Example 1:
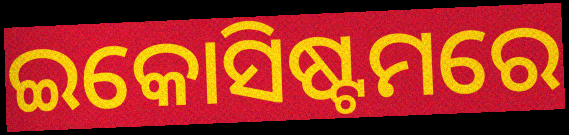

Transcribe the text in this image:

ଇକୋସିଷ୍ଟମରେ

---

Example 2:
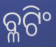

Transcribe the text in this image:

ବ୍ଳଟିଂ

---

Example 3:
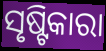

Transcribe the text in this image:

ସୃଷ୍ଟିକାରା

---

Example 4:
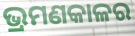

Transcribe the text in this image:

ଭ୍ରମଣକାଳର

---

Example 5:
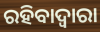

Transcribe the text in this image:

ରହିବାଦ୍ଵାରା